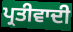
ਪ੍ਰਤੀਵਾਦੀ